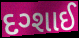
દગ્શાઈ